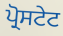
ਪ੍ਰੋਸਟੇਟ